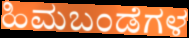
ಹಿಮಬಂಡೆಗಳ